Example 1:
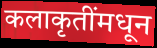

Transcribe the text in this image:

कलाकृतींमधून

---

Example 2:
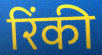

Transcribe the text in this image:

रिंकी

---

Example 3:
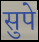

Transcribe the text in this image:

सुपे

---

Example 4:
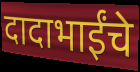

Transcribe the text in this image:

दादाभाईंचे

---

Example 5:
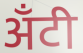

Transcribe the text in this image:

अँटी